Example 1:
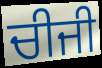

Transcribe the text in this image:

ਚੀਜੀ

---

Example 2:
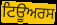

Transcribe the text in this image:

ਟਿਊਅਰਸ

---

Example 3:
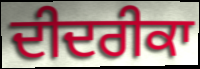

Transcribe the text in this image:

ਦੀਦਰੀਕਾ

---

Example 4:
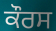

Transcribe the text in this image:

ਕੌਰਸ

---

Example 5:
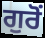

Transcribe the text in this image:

ਗੁਰੋਂ